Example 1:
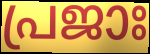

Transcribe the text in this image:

പ്രജാഃ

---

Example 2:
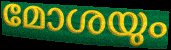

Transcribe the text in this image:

മോശയും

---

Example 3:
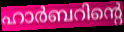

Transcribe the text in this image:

ഹാർബറിന്റെ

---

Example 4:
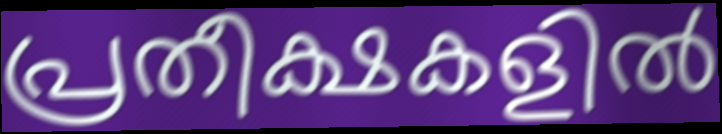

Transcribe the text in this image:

പ്രതീക്ഷകളിൽ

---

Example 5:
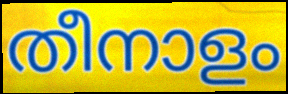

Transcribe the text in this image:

തീനാളം